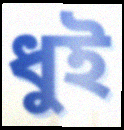
ধুই